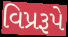
વિપ્રરૂપે